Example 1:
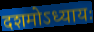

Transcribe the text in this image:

दशमोऽध्यायः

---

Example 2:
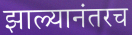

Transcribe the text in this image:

झाल्यानंतरच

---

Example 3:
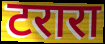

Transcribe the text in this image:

टरारा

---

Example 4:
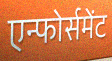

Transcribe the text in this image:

एन्फोर्समेंट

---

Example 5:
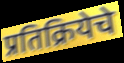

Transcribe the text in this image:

प्रतिक्रियेचे